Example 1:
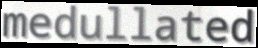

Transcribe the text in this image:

medullated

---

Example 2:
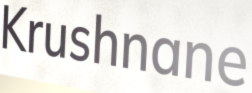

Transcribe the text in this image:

Krushnane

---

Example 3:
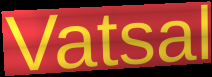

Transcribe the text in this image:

Vatsal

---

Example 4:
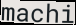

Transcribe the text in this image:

machi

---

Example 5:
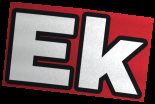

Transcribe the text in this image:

Ek